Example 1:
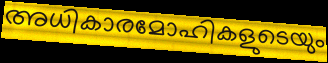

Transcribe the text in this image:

അധികാരമോഹികളുടെയും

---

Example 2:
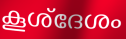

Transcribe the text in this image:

കൂശ്ദേശം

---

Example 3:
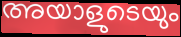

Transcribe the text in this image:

അയാളുടെയും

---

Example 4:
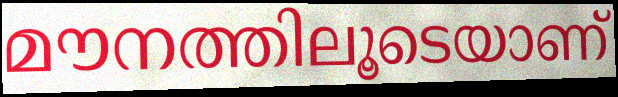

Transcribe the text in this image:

മൗനത്തിലൂടെയാണ്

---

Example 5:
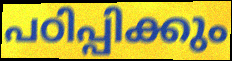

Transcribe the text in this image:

പഠിപ്പിക്കും